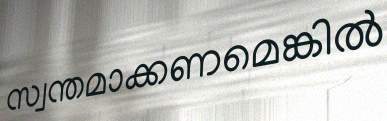
സ്വന്തമാക്കണമെങ്കിൽ